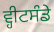
ਵ੍ਹੀਟਸੰਡੇ